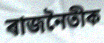
ৰাজনৈতীক